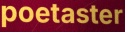
poetaster